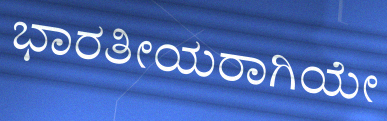
ಭಾರತೀಯರಾಗಿಯೇ